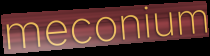
meconium